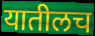
यातीलच